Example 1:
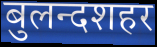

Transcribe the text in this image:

बुलन्दशहर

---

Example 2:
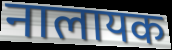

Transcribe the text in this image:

नालायक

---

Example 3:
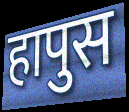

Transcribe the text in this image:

हापुस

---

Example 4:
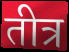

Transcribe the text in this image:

तीत्र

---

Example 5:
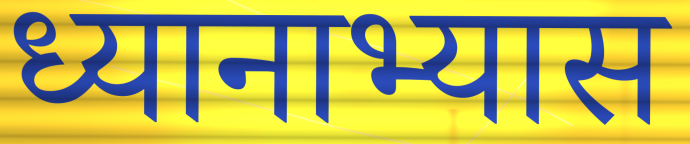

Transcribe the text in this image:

ध्यानाभ्यास